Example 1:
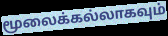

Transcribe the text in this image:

மூலைக்கல்லாகவும்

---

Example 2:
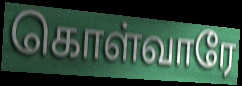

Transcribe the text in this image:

கொள்வாரே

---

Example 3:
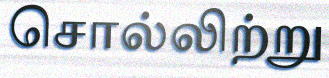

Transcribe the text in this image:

சொல்லிற்று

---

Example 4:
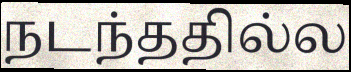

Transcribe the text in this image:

நடந்ததில்ல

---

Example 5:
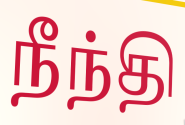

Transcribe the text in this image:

நீந்தி